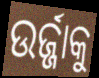
ଉର୍ଜ୍ଜାକୁ